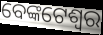
ବେଙ୍କଟେଶ୍ୱର